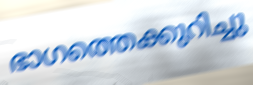
ഭാഗത്തെക്കുറിച്ചു